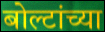
बोल्टांच्या